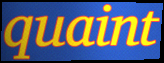
quaint